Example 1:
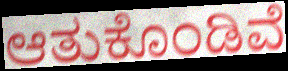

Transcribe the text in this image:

ಆತುಕೊಂಡಿವೆ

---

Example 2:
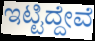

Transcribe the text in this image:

ಇಟ್ಟಿದ್ದೇವೆ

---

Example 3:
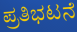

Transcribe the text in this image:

ಪ್ರತಿಭಟನೆ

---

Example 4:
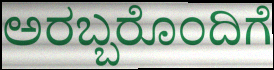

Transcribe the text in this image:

ಅರಬ್ಬರೊಂದಿಗೆ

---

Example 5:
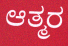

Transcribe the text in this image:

ಆತ್ಮರ